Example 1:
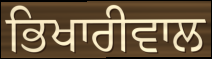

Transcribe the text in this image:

ਭਿਖਾਰੀਵਾਲ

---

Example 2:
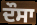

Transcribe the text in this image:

ਦੌਸਾ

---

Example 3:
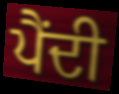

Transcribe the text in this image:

ਪੈਂਦੀ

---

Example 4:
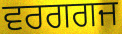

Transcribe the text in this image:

ਵਰਗਗਜ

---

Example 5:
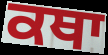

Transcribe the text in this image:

ਕਥਾ